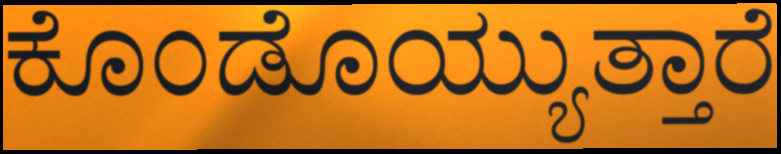
ಕೊಂಡೊಯ್ಯುತ್ತಾರೆ